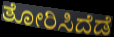
ತೋರಿಸಿದೆಡೆ